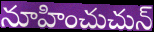
నూహించుచున్